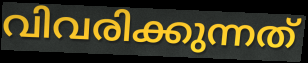
വിവരിക്കുന്നത്